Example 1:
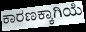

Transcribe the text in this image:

ಕಾರಣಕ್ಕಾಗಿಯೆ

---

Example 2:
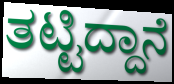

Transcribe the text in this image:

ತಟ್ಟಿದ್ದಾನೆ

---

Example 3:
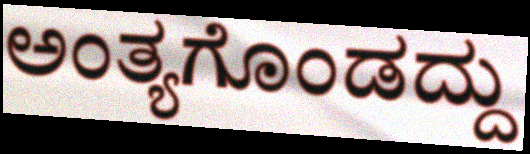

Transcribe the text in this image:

ಅಂತ್ಯಗೊಂಡದ್ದು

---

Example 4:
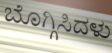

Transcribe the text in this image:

ಬೊಗ್ಗಿಸಿದಳು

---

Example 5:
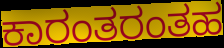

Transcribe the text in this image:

ಕಾರಂತರಂತಹ